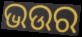
ଭଉର